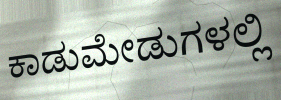
ಕಾಡುಮೇಡುಗಳಲ್ಲಿ